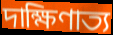
দাক্ষিণাত্য